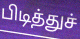
பிடித்துச்